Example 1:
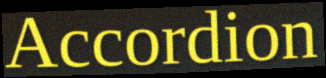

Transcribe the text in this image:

Accordion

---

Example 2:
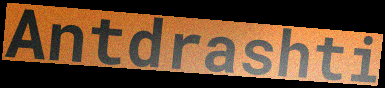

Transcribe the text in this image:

Antdrashti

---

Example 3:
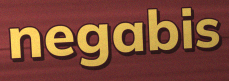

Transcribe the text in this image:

negabis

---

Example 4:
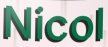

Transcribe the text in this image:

Nicol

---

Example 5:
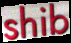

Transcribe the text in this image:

shib